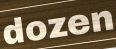
dozen